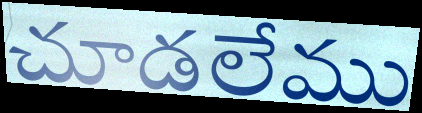
చూడలేము